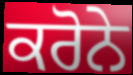
ਕਰੋਨੇ